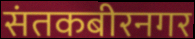
संतकबीरनगर